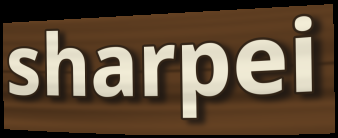
sharpei